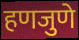
हणजुणे